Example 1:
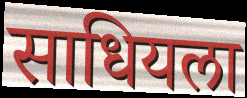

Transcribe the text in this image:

साधियला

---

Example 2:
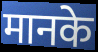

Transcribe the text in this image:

मानके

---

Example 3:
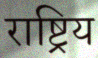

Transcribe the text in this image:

राष्ट्रिय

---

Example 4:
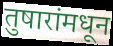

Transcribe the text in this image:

तुषारांमधून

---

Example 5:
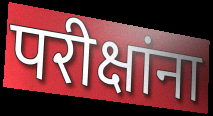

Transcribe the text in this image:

परीक्षांना